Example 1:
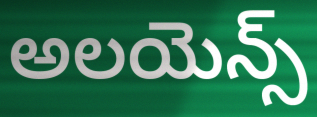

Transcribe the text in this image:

అలయెన్స్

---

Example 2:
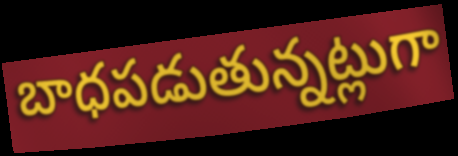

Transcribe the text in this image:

బాధపడుతున్నట్లుగా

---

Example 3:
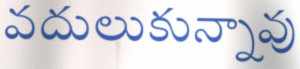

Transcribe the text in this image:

వదులుకున్నావు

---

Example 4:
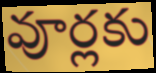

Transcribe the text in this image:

వూర్లకు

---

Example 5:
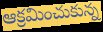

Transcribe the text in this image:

ఆక్రమించుకున్న